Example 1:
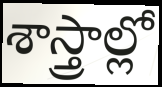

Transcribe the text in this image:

శాస్త్రాల్లో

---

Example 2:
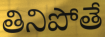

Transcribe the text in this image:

తినిపోతే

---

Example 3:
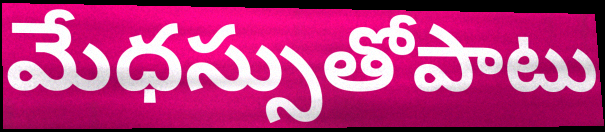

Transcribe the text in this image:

మేధస్సుతోపాటు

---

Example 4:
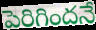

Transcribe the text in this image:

పెరిగిందనే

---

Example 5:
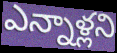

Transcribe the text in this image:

ఎన్నాళ్లని